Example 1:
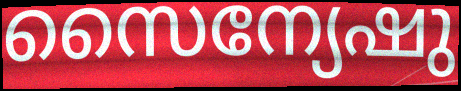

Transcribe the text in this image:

സൈന്യേഷു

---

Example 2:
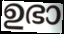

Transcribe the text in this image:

ഉഭാ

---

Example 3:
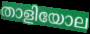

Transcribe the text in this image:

താളിയോല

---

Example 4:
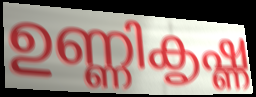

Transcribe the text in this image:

ഉണ്ണികൃഷ്ണ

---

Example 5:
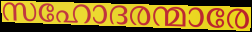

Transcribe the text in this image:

സഹോദരന്മാരേ